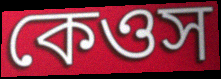
কেওস